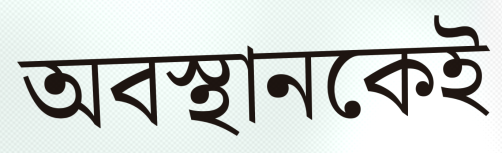
অবস্থানকেই